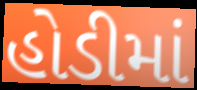
હોડીમાં